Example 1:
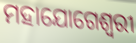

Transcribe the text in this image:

ମହାଯୋଗେଶ୍ୱରୀ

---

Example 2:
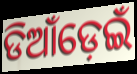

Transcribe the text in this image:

ଡିଆଁଡ଼େଇଁ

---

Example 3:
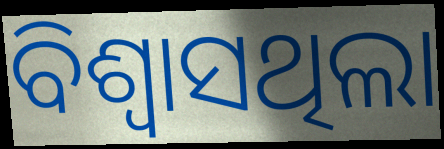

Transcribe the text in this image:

ବିଶ୍ୱାସଥିଲା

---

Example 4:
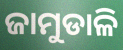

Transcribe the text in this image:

ଜାମୁଡାଳି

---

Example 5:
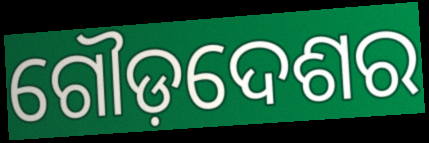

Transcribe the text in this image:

ଗୌଡ଼ଦେଶର